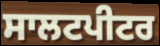
ਸਾਲਟਪੀਟਰ